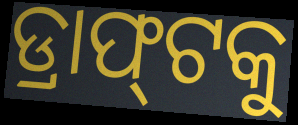
ଡ୍ରାଫ୍‌ଟକୁ